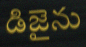
డిజైను